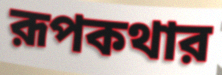
রূপকথার